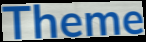
Theme